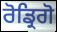
ਰੋਡ੍ਰਿਗੋ